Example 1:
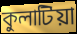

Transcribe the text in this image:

কুলাটিয়া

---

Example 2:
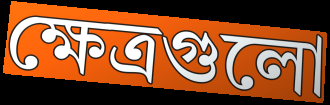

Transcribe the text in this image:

ক্ষেত্রগুলো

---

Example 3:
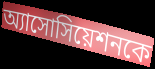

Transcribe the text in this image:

অ্যাসোসিয়েশনকে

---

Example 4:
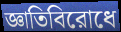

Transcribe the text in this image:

জ্ঞাতিবিরোধে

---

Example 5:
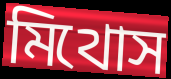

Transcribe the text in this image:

মিথোস